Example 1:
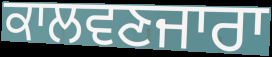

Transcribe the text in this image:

ਕਾਲਵਣਜਾਰਾ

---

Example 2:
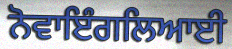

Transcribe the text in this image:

ਨੋਵਾਇੰਗਲਿਆਈ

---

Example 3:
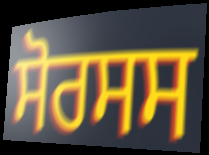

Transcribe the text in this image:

ਸੋਰਸਸ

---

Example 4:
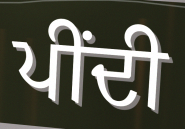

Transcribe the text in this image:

ਪੀਂਦੀ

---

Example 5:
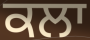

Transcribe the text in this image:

ਕਲਾ